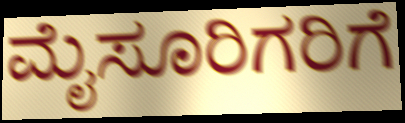
ಮೈಸೂರಿಗರಿಗೆ